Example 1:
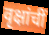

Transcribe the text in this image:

वृक्षांचीं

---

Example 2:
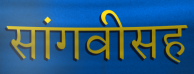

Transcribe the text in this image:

सांगवीसह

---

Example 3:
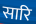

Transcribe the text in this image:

सारि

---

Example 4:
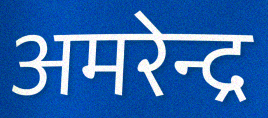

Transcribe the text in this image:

अमरेन्द्र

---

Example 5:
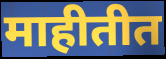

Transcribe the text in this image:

माहीतीत